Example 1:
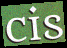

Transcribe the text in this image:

cis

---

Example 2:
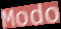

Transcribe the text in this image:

Modo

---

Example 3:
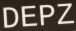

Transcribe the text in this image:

DEPZ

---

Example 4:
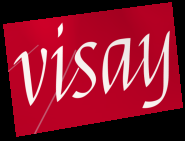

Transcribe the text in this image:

visay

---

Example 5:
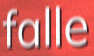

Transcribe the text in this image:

falle